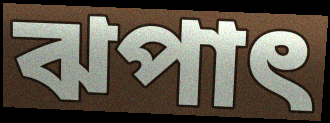
ঝপাৎ